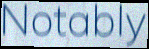
Notably